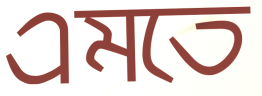
এমতে